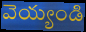
వెయ్యండి